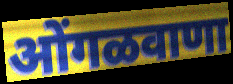
ओंगळवाणा